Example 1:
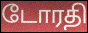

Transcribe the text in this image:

டோரதி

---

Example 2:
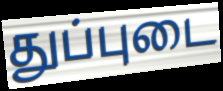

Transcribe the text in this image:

துப்புடை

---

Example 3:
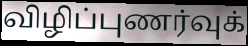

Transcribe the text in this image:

விழிப்புணர்வுக்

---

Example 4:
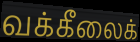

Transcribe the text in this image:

வக்கீலைக்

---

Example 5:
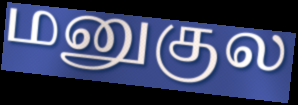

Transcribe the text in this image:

மனுகுல